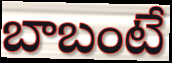
బాబంటే